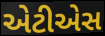
એટીએસ